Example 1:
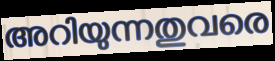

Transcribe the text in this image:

അറിയുന്നതുവരെ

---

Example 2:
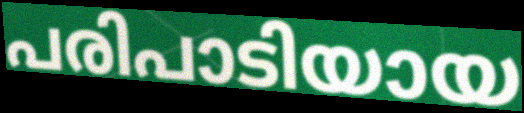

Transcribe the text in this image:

പരിപാടിയായ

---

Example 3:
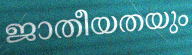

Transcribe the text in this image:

ജാതീയതയും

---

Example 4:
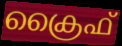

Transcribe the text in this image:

ക്രൈഫ്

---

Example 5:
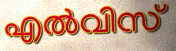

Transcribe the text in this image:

എൽവിസ്